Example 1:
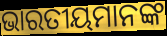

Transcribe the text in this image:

ଭାରତୀୟମାନଙ୍କ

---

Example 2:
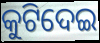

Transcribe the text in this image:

କୁଟିଦେଇ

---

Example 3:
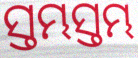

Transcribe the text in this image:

ସ୍ତମ୍ଭସ୍ତମ୍ଭ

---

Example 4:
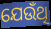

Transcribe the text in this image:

ଯେଉଁଥି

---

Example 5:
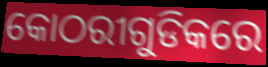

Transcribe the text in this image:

କୋଠରୀଗୁଡିକରେ